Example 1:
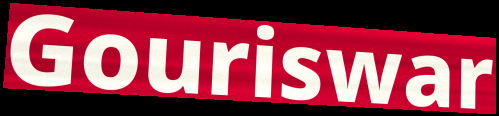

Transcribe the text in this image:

Gouriswar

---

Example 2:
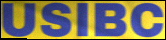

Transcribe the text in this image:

USIBC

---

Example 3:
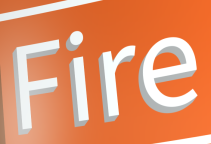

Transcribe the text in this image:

Fire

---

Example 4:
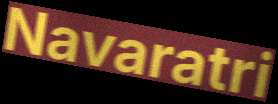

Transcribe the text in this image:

Navaratri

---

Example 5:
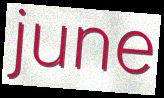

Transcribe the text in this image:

june